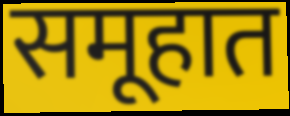
समूहात